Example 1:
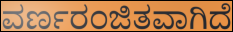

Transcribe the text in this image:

ವರ್ಣರಂಜಿತವಾಗಿದೆ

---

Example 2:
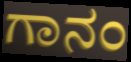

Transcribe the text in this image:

ಗಾನಂ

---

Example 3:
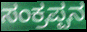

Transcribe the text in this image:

ಸಂಕ್ರಪ್ಪನ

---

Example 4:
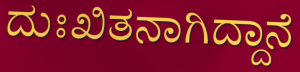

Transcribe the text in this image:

ದುಃಖಿತನಾಗಿದ್ದಾನೆ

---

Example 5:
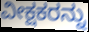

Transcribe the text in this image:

ವೀಕ್ಷಕರನ್ನು